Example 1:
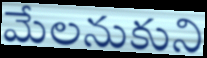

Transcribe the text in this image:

మేలనుకుని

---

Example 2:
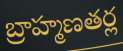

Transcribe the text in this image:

బ్రాహ్మణతర్ల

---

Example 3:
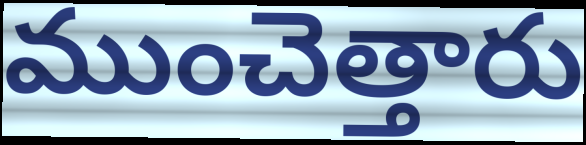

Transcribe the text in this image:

ముంచెత్తారు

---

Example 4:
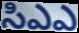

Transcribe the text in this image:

సిఎఎ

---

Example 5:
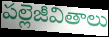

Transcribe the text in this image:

పల్లెజీవితాలు